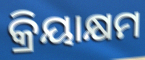
କ୍ରିୟାକ୍ଷମ